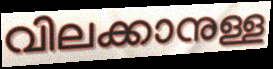
വിലക്കാനുള്ള